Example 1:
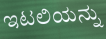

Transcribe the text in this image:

ಇಟಲಿಯನ್ನು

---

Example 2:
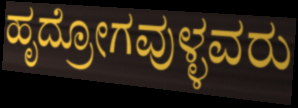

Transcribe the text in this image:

ಹೃದ್ರೋಗವುಳ್ಳವರು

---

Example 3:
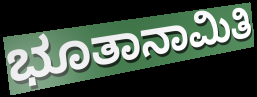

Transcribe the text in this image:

ಭೂತಾನಾಮಿತಿ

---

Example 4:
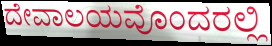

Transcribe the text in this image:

ದೇವಾಲಯವೊಂದರಲ್ಲಿ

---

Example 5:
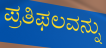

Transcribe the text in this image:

ಪ್ರತಿಫಲವನ್ನು